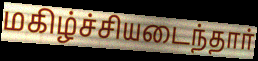
மகிழ்ச்சியடைந்தார்